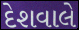
દેશવાલે